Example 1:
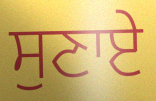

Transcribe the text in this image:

ਸੁਣਾਏ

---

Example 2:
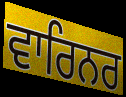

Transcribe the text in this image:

ਵਾਰਿਨਰ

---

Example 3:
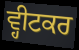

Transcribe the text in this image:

ਵ੍ਹੀਟਕਰ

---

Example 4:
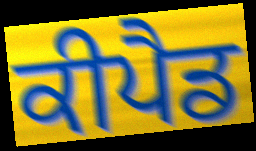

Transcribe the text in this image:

ਕੀਪੈਡ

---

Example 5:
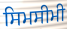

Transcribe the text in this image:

ਸਿਮਸੀਮੀ